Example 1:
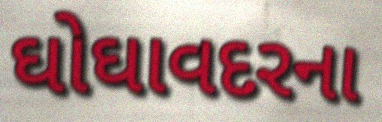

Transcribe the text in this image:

ઘોઘાવદરના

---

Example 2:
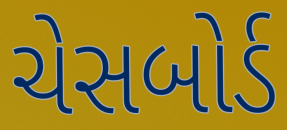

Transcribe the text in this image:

ચેસબોર્ડ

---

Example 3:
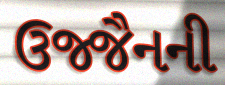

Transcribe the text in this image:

ઉજ્જૈનની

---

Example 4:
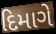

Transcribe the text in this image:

દિમાગે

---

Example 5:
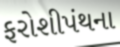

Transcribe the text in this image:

ફરોશીપંથના